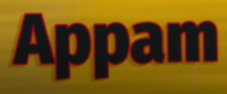
Appam